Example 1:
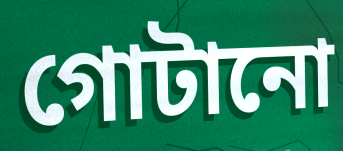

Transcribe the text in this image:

গোটানো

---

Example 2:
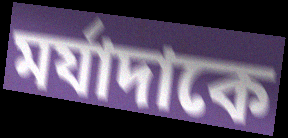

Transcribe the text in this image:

মর্যাদাকে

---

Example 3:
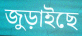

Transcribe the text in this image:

জুড়াইছে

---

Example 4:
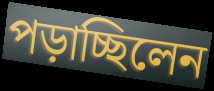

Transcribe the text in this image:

পড়াচ্ছিলেন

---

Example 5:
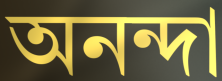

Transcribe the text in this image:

অনন্দা